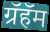
ग्रॅहॅम